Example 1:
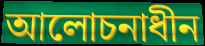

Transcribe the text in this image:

আলোচনাধীন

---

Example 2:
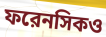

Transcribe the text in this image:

ফরেনসিকও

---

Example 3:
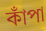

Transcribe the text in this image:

কাঁপা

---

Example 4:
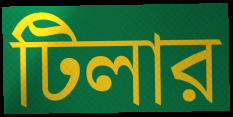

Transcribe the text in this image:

টিলার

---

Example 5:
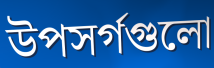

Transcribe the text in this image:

উপসর্গগুলো